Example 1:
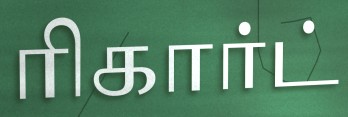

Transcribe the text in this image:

ரிகார்ட்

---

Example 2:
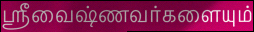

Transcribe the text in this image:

ஸ்ரீவைஷ்ணவர்களையும்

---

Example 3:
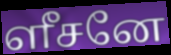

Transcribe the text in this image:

ளீசனே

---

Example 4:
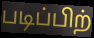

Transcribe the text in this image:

படிப்பிற்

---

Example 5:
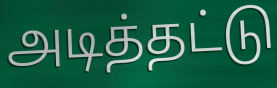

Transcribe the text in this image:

அடித்தட்டு